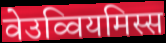
वेउव्वियमिस्स